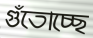
গুঁতোচ্ছে